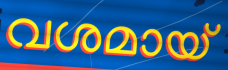
വശമായ്